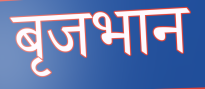
बृजभान